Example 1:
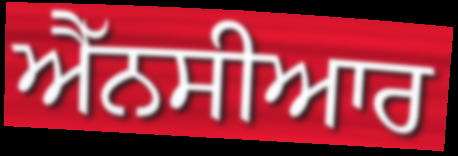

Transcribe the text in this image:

ਐੱਨਸੀਆਰ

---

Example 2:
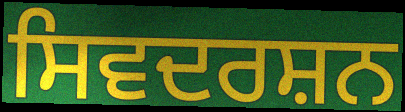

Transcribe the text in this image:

ਸਿਵਦਰਸ਼ਨ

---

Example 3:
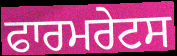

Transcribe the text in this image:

ਫਾਰਮਰੇਟਸ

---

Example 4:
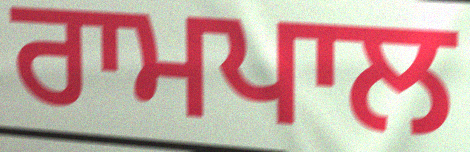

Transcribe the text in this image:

ਰਾਮਪਾਲ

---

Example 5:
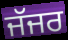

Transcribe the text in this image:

ਜੱਜਰ